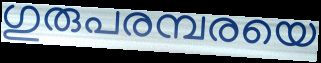
ഗുരുപരമ്പരയെ